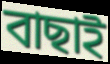
বাছাই